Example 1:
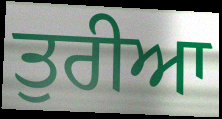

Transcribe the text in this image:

ਤੁਰੀਆ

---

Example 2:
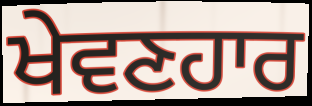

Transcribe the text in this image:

ਖੇਵਣਹਾਰ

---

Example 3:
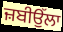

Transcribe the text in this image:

ਜ਼ਬੀਉੱਲਾ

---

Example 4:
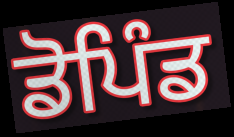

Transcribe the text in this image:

ਡੋਪਿੰਡ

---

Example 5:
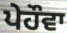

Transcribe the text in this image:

ਪੇਹੌਵਾ